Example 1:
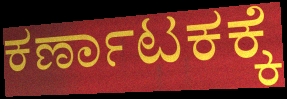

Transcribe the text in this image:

ಕರ್ಣಾಟಕಕ್ಕೆ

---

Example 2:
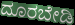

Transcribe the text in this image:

ದೂರಬೇಡಿ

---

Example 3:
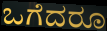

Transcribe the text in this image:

ಒಗೆದರೂ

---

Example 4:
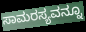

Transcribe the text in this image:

ಸಾಮರಸ್ಯವನ್ನೂ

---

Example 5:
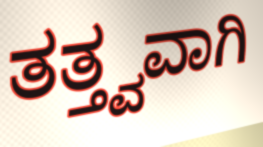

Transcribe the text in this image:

ತತ್ತ್ವವಾಗಿ